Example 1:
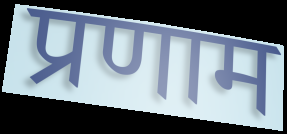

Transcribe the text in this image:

प्रणाम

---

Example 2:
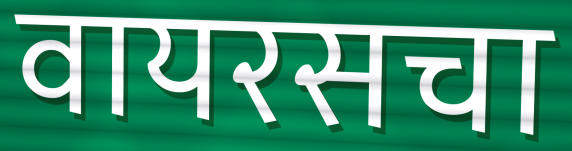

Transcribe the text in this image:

वायरसचा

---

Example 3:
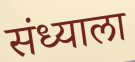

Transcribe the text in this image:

संध्याला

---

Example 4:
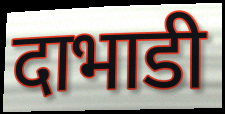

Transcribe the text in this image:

दाभाडी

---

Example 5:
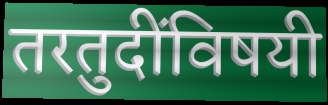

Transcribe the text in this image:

तरतुदींविषयी